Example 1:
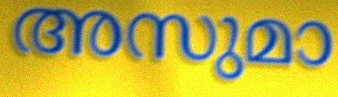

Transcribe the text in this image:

അസുമാ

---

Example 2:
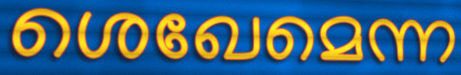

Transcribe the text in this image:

ശെഖേമെന്ന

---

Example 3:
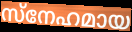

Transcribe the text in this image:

സ്നേഹമായ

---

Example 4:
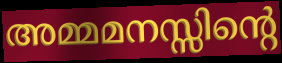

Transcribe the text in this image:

അമ്മമനസ്സിന്റെ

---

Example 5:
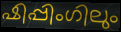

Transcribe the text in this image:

ഷിപ്പിംഗിലും